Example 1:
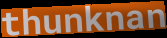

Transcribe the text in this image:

thunknan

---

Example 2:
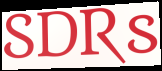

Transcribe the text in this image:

SDRs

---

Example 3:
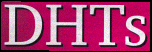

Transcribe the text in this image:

DHTs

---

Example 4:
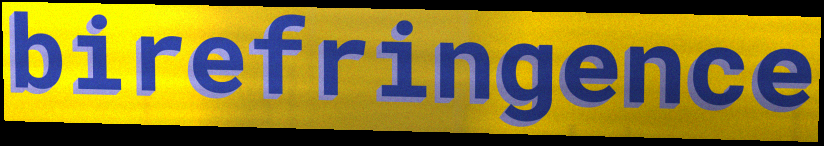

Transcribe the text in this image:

birefringence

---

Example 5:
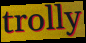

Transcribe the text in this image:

trolly